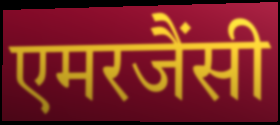
एमरजैंसी